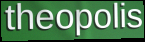
theopolis